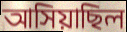
আসিয়াছিল